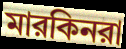
মারকিনরা